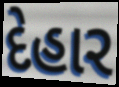
દેહાર